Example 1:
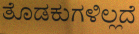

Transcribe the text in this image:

ತೊಡಕುಗಳಿಲ್ಲದೆ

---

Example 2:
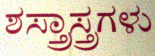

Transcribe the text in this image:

ಶಸ್ತ್ರಾಸ್ತ್ರಗಳು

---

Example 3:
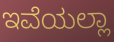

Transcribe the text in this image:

ಇವೆಯಲ್ಲಾ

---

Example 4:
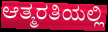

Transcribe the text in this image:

ಆತ್ಮರತಿಯಲ್ಲಿ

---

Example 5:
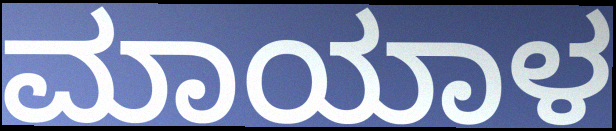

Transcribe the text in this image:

ಮಾಯಾಳ